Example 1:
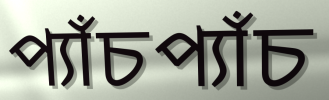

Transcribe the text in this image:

প্যাঁচপ্যাঁচ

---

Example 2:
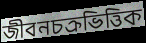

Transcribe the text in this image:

জীবনচক্রভিত্তিক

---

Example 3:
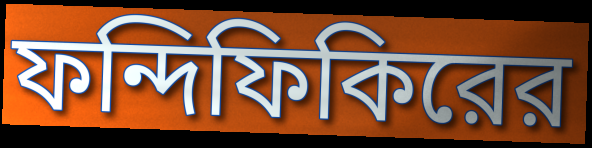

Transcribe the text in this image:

ফন্দিফিকিরের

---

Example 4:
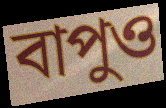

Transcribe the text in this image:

বাপুও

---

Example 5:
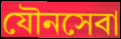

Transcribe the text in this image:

যৌনসেবা